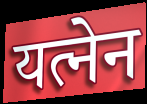
यत्‍नेन